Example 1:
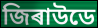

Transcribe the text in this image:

জিৰাউডে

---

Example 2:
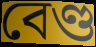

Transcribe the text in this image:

বেণ্ড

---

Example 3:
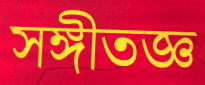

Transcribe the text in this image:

সঙ্গীতজ্ঞ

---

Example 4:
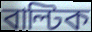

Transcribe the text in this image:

বাল্টিক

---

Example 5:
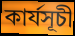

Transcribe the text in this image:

কাৰ্যসূচী